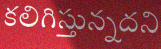
కలిగిస్తున్నదని